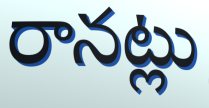
రానట్లు